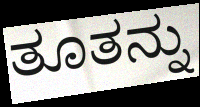
ತೂತನ್ನು